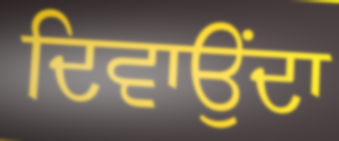
ਦਿਵਾਉਂਦਾ